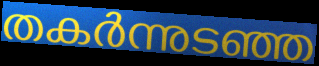
തകർന്നുടഞ്ഞ